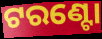
ଟରଣ୍ଟୋ